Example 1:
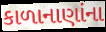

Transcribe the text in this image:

કાળાનાણાંના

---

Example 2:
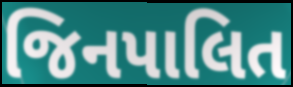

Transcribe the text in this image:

જિનપાલિત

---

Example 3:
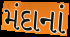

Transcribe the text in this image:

મંદાનાં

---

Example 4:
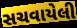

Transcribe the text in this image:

સચવાયેલી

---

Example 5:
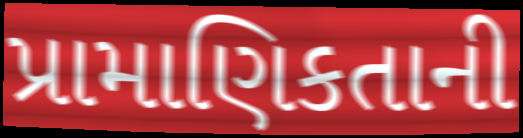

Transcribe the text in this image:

પ્રામાણિકતાની